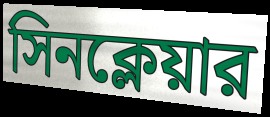
সিনক্লেয়ার